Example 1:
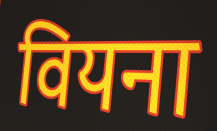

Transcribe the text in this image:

वियना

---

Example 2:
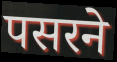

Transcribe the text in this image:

पसरने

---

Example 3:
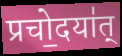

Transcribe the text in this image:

प्रचो॒दया॑त्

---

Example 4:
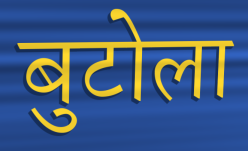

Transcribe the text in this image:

बुटोला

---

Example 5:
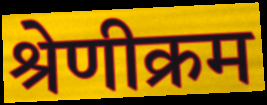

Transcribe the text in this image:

श्रेणीक्रम